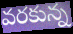
వరకున్న